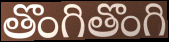
తొంగితొంగి